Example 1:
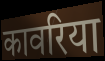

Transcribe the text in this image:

कावरिया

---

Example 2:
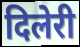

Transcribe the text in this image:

दिलेरी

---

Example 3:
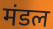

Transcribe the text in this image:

मंडल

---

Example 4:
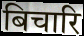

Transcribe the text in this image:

बिचारि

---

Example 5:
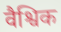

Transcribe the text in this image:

वैश्विक